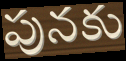
పునకు